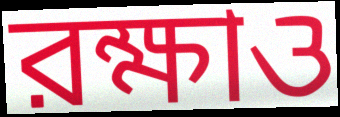
রক্ষাও